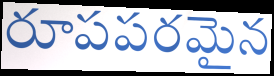
రూపపరమైన